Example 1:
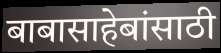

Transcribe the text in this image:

बाबासाहेबांसाठी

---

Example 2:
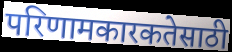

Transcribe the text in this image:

परिणामकारकतेसाठी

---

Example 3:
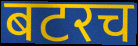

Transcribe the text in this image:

बटरच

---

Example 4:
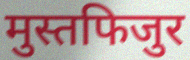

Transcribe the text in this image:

मुस्तफिजुर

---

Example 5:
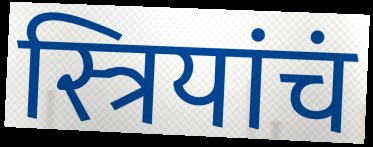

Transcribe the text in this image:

स्त्रियांचं